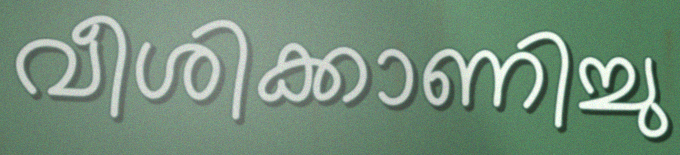
വീശിക്കാണിച്ചു